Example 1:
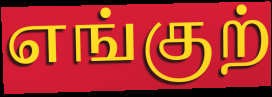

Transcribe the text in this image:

எங்குற்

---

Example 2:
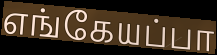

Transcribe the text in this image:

எங்கேயப்பா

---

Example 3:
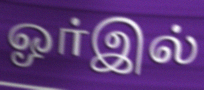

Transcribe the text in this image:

ஓர்இல்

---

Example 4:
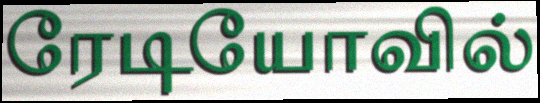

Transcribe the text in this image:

ரேடியோவில்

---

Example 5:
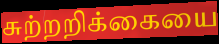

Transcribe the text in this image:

சுற்றறிக்கையை